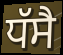
ਧੱਸੈ